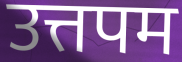
उत्तपम